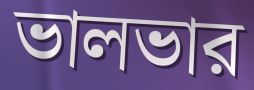
ভালভার